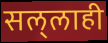
सल्लाही